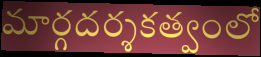
మార్గదర్శకత్వంలో